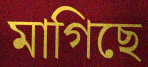
মাগিছে